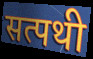
सत्पथी